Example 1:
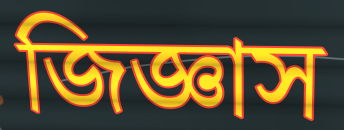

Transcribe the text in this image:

জিজ্ঞাস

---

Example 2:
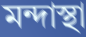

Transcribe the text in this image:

মন্দাস্থা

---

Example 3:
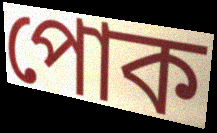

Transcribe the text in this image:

পোক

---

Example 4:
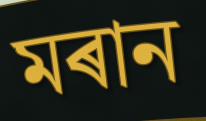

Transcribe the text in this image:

মৰান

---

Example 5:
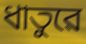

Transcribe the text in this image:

ধাতুৱে